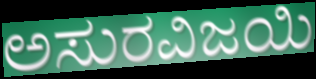
ಅಸುರವಿಜಯಿ